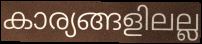
കാര്യങ്ങളിലല്ല